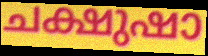
ചക്ഷുഷാ